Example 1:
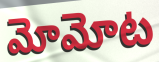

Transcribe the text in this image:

మోమోట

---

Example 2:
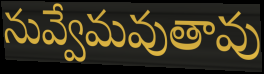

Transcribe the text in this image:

నువ్వేమవుతావు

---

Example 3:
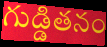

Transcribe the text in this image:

గుడ్డితనం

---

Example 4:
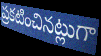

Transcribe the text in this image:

ప్రకటించినట్లుగా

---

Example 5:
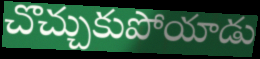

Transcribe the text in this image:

చొచ్చుకుపోయాడు